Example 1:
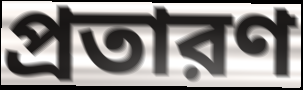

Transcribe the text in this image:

প্রতারণ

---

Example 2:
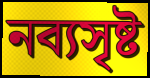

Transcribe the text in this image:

নব্যসৃষ্ট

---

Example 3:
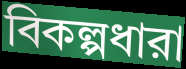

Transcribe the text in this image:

বিকল্পধারা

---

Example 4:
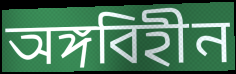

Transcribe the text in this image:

অঙ্গবিহীন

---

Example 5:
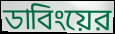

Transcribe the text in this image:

ডাবিংয়ের